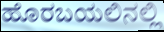
ಹೊರಬಯಲಿನಲ್ಲಿ